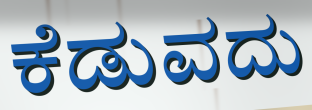
ಕೆಡುವದು